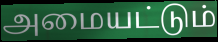
அமையட்டும்